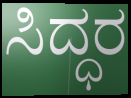
ಸಿದ್ಧರ